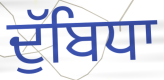
ਦੁੱਬਿਧਾ